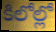
కిలోల్లో